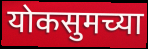
योकसुमच्या